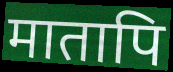
मातापि